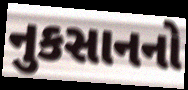
નુકસાનનો